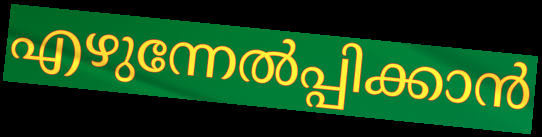
എഴുന്നേൽപ്പിക്കാൻ